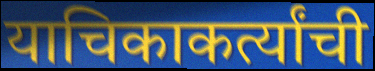
याचिकाकर्त्यांची